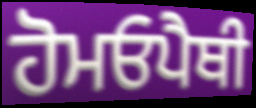
ਹੋਮਓਪੈਥੀ